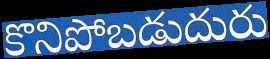
కొనిపోబడుదురు